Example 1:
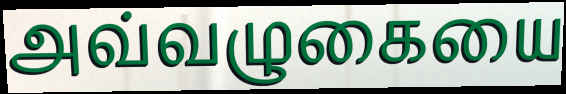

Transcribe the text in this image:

அவ்வழுகையை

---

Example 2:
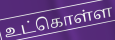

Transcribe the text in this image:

உட்கொள்ள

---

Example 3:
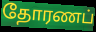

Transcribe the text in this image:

தோரணப்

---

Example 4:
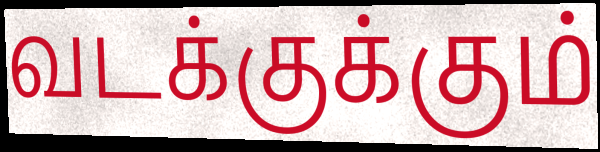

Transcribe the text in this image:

வடக்குக்கும்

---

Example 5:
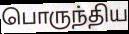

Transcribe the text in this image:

பொருந்திய